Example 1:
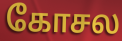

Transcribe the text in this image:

கோசல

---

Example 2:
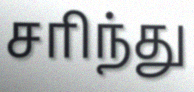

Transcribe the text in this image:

சரிந்து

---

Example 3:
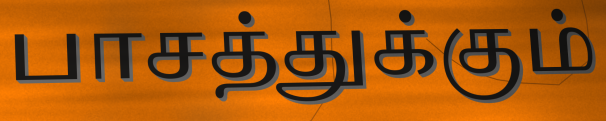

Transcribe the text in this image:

பாசத்துக்கும்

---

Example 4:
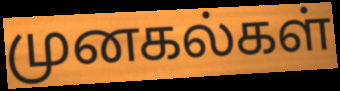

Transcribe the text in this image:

முனகல்கள்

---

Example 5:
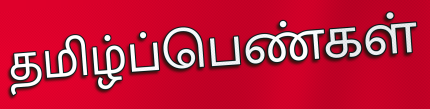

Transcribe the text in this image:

தமிழ்ப்பெண்கள்